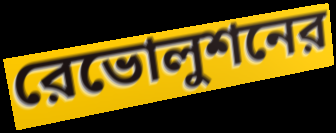
রেভোলুশনের